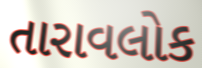
તારાવલોક